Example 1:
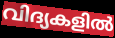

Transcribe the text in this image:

വിദ്യകളിൽ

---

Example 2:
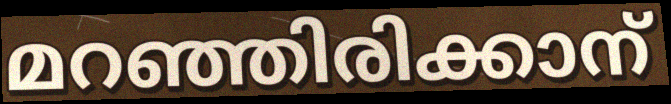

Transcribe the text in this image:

മറഞ്ഞിരിക്കാന്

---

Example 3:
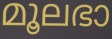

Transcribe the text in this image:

മൂലഭാ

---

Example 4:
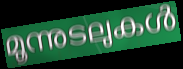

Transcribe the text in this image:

മൂന്നുടലുകൾ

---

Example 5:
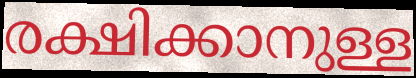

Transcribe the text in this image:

രക്ഷിക്കാനുള്ള